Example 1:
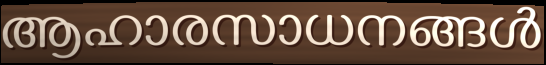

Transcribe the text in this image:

ആഹാരസാധനങ്ങൾ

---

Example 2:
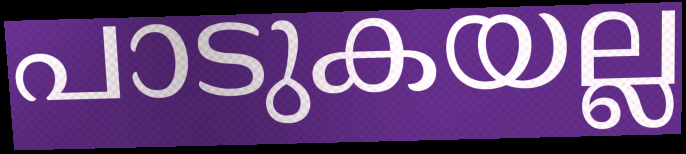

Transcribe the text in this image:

പാടുകയല്ല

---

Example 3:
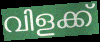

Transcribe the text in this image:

വിളക്ക്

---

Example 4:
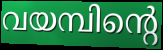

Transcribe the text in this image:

വയമ്പിന്റെ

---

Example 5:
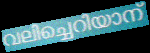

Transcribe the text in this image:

വലിച്ചെറിയാന്